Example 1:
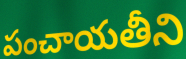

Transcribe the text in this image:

పంచాయతీని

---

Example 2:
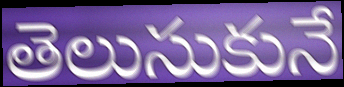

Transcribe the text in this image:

తెలుసుకునే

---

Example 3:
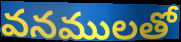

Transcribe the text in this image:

వనములతో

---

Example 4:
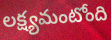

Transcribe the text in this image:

లక్ష్యమంటోంది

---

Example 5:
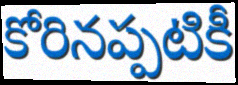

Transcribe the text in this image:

కోరినప్పటికీ